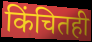
किंचितही